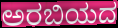
ಅರಬಿಯದ